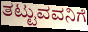
ತಟ್ಟುವವನಿಗೆ